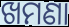
ଖମଣା